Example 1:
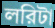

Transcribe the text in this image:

লরিটা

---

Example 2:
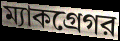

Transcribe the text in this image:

ম্যাকগ্রেগর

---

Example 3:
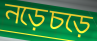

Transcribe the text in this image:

নড়েচড়ে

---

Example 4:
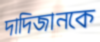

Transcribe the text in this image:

দাদিজানকে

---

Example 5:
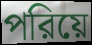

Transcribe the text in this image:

পরিয়ে